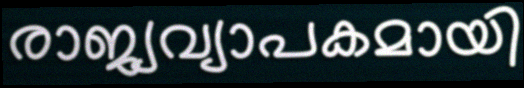
രാജ്യവ്യാപകമായി